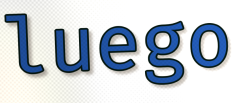
luego